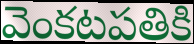
వెంకటపతికి